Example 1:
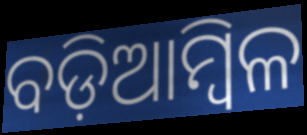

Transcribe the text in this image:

ବଡ଼ିଆମ୍ବିଳ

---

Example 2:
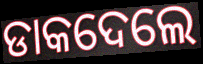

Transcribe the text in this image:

ଡାକଦେଲେ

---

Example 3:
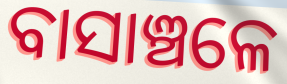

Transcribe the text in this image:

ବାସାଞ୍ଚଳେ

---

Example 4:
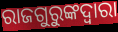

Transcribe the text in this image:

ରାଜଗୁରୁଙ୍କଦ୍ୱାରା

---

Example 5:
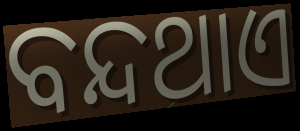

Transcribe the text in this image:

ବନ୍ଦଥାଏ